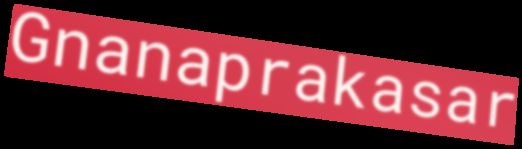
Gnanaprakasar